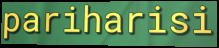
pariharisi